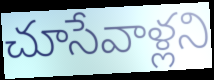
చూసేవాళ్లని